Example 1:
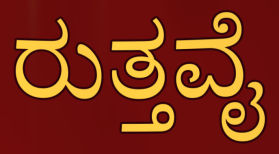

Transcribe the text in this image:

ರುತ್ತವೈ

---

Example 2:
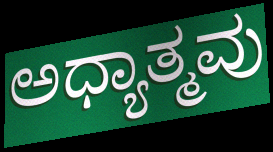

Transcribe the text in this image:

ಅಧ್ಯಾತ್ಮವು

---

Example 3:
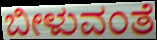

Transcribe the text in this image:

ಬೀಳುವಂತೆ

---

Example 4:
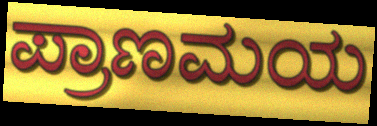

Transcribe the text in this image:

ಪ್ರಾಣಮಯ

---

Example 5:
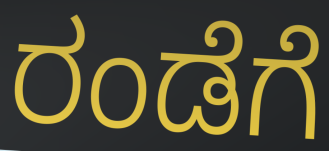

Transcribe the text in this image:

ರಂಡೆಗೆ